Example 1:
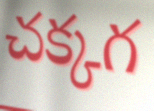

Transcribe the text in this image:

చక్కగ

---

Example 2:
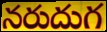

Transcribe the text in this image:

నరుదుగ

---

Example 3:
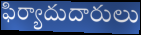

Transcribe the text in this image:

ఫిర్యాదుదారులు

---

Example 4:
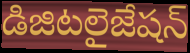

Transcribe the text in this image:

డిజిటలైజేషన్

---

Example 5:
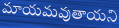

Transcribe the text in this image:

మాయమవుతాయని